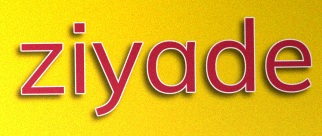
ziyade